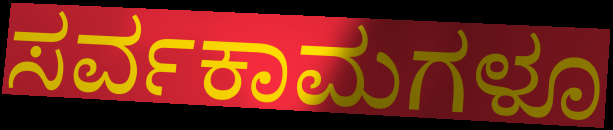
ಸರ್ವಕಾಮಗಳೂ